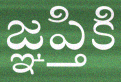
జ్ఞప్తికి